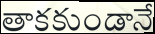
తాకకుండానే